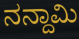
ನನ್ದಾಮಿ